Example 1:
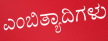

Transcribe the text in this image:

ಎಂಬಿತ್ಯಾದಿಗಳು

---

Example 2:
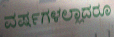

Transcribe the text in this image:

ವರ್ಷಗಳಲ್ಲಾದರೂ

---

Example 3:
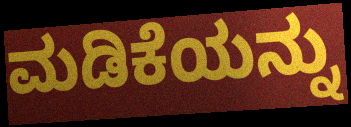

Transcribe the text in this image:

ಮಡಿಕೆಯನ್ನು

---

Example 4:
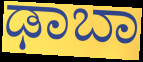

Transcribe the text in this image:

ಢಾಬಾ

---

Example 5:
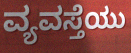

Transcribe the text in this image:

ವ್ಯವಸ್ತೆಯು